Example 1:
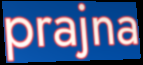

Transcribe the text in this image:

prajna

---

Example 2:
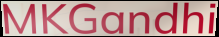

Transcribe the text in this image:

MKGandhi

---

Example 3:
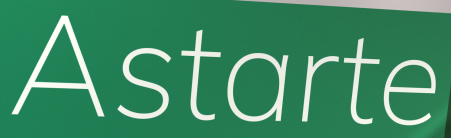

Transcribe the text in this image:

Astarte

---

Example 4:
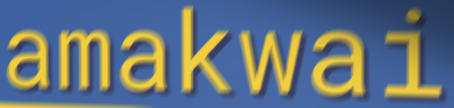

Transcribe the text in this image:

amakwai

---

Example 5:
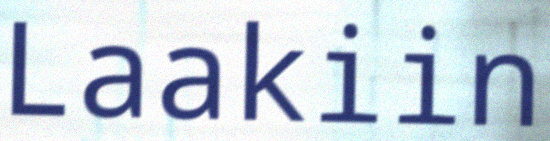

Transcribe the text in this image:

Laakiin